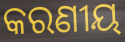
କରଣୀୟ